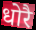
धोरै